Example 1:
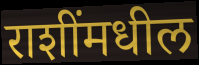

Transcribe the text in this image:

राशींमधील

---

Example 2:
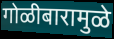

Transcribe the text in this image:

गोळीबारामुळे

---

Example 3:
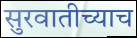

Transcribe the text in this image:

सुरवातीच्याच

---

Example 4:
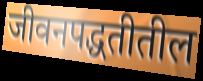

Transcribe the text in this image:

जीवनपद्धतीतील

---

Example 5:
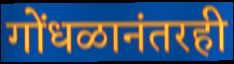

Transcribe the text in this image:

गोंधळानंतरही